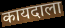
कायदाला